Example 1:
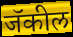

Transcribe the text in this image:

जॅकील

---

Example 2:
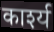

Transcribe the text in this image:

कार्श्य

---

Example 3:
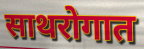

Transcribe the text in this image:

साथरोगात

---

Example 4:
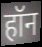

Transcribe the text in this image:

हॉन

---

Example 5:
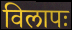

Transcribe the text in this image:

विलापः